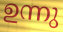
ഉന്നു